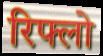
रिफ्लो